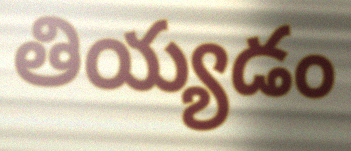
తియ్యడం